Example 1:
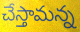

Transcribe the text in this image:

చేస్తామన్న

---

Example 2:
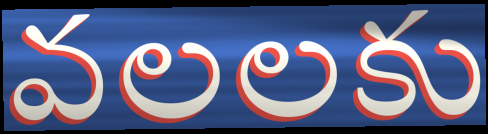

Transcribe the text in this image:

వలలకు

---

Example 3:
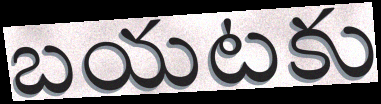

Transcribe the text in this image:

బయటకు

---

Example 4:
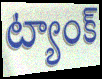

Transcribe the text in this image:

ట్యాంక్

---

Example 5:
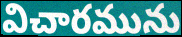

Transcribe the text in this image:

విచారమును